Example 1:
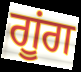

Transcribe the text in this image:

ਗੂਂਗ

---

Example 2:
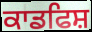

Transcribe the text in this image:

ਕਾਡਫਿਸ਼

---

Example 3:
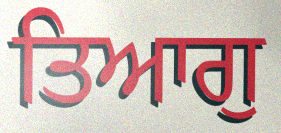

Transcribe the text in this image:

ਤਿਆਗੁ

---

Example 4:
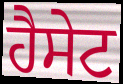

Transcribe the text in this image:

ਹੈਸੇਟ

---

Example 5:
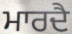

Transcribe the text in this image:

ਮਾਰਦੈ